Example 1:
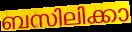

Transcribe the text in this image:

ബസിലിക്കാ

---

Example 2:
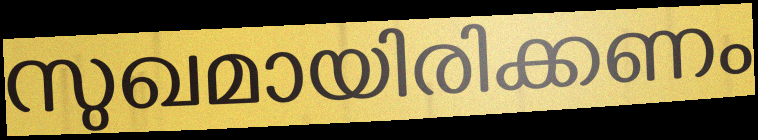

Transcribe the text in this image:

സുഖമായിരിക്കണം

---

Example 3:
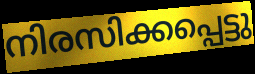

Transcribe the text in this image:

നിരസിക്കപ്പെട്ടു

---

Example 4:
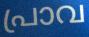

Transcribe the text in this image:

പ്രാവ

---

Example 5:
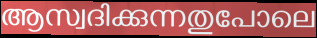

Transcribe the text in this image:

ആസ്വദിക്കുന്നതുപോലെ